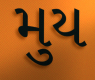
મુય